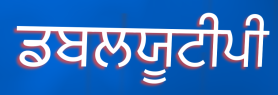
ਡਬਲਯੂਟੀਪੀ